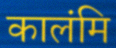
कालंमि